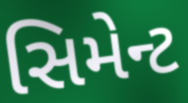
સિમેન્ટ